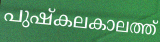
പുഷ്കലകാലത്ത്